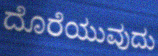
ದೊರೆಯುವುದು